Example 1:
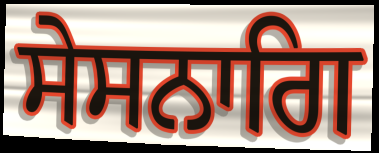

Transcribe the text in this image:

ਸੇਸਨਾਗਿ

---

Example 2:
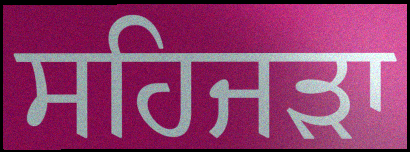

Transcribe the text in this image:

ਸਹਿਜੜਾ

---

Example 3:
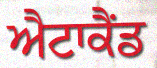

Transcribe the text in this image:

ਐਟਾਕੈਂਡ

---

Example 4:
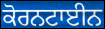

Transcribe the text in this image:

ਕੋਰਨਟਾਈਨ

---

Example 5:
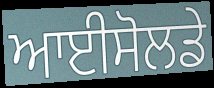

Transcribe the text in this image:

ਆਈਸੋਲਡੇ